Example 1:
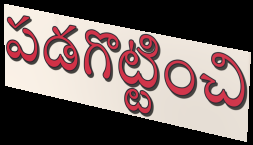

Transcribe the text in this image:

పడగొట్టించి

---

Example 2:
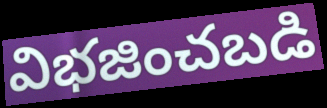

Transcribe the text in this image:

విభజించబడి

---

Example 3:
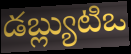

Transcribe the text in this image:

డబ్ల్యుటిఒ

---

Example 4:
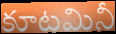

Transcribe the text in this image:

కూటమినీ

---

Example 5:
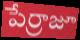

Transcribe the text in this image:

పేర్రాజూ